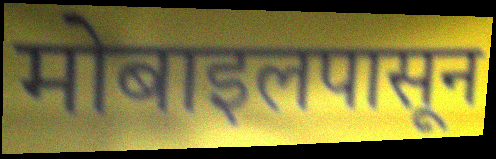
मोबाइलपासून